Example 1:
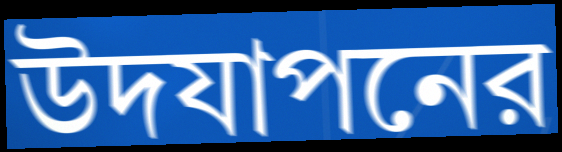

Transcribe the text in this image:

উদযাপনের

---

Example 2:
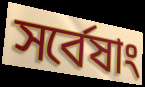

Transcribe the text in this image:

সর্বেষাং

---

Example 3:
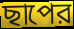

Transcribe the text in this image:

ছাপের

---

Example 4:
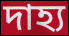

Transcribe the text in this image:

দাহ্য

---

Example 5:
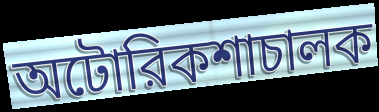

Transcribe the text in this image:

অটোরিকশাচালক